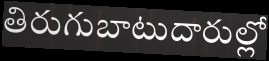
తిరుగుబాటుదారుల్లో